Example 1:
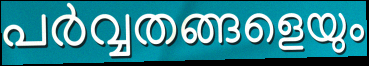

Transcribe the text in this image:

പർവ്വതങ്ങളെയും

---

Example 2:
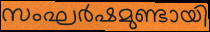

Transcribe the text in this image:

സംഘർഷമുണ്ടായി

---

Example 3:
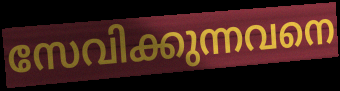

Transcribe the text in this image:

സേവിക്കുന്നവനെ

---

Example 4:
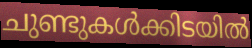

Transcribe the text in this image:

ചുണ്ടുകൾക്കിടയിൽ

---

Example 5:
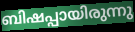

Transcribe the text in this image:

ബിഷപ്പായിരുന്നു